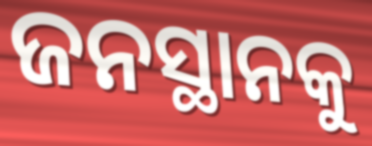
ଜନସ୍ଥାନକୁ